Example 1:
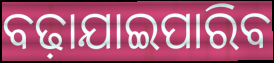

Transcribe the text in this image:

ବଢ଼ାଯାଇପାରିବ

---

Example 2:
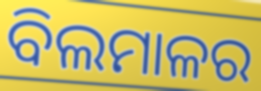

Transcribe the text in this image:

ବିଲମାଳର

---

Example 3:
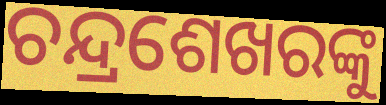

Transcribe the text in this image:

ଚନ୍ଦ୍ରଶେଖରଙ୍କୁ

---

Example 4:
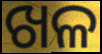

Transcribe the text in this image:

ଖଳ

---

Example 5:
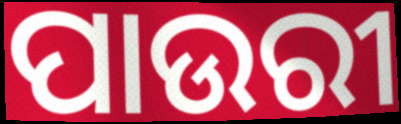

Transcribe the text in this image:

ପାଉରୀ